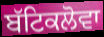
ਬੱਟਿਕਲੋਵਾ